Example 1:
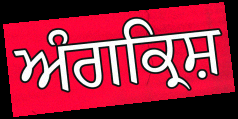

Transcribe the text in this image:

ਅੰਗਕ੍ਰਿਸ਼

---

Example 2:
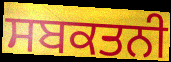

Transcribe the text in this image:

ਸਬਕਤਨੀ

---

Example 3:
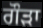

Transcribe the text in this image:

ਗੌੜਾ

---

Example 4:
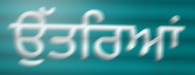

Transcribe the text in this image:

ਉੱਤਰਿਆਂ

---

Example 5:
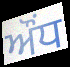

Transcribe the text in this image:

ਔਂਧ